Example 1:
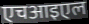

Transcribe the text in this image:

एचआइएल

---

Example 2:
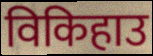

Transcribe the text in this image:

विकिहाउ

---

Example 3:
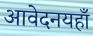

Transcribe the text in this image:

आवेदनयहाँ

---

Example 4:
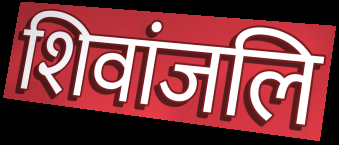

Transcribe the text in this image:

शिवांजलि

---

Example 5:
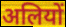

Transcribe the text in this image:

अलियों